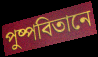
পুষ্পবিতানে